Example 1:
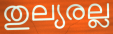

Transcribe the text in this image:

തുല്യരല്ല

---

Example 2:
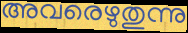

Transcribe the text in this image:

അവരെഴുതുന്നു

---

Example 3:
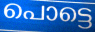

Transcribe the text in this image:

പൊട്ടെ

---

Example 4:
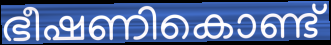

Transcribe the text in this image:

ഭീഷണികൊണ്ട്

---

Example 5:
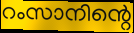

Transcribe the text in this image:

റംസാനിന്റെ